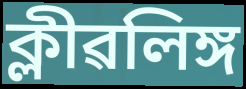
ক্লীৱলিঙ্গ